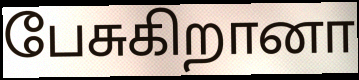
பேசுகிறானா